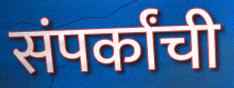
संपर्कांची